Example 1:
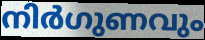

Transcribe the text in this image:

നിർഗുണവും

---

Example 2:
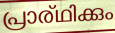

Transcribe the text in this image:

പ്രാര്ഥിക്കും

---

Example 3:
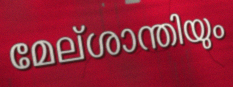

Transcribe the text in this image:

മേല്ശാന്തിയും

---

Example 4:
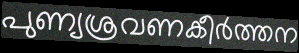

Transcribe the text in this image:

പുണ്യശ്രവണകീർത്തന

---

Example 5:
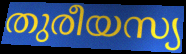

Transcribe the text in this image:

തുരീയസ്യ